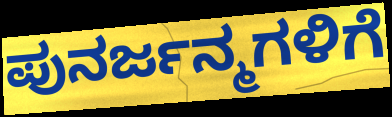
ಪುನರ್ಜನ್ಮಗಳಿಗೆ